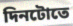
দিনটোতে